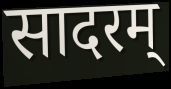
सादरम्